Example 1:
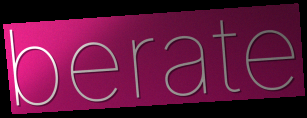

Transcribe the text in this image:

berate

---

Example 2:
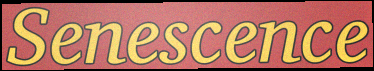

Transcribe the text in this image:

Senescence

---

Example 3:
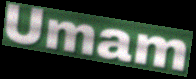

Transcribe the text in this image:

Umam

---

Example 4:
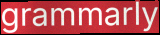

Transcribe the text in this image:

grammarly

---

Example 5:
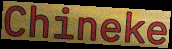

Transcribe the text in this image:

Chineke